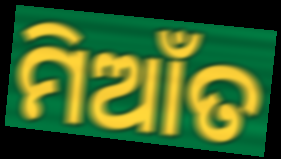
ମିଆଁତ